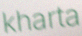
kharta